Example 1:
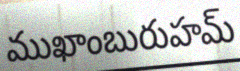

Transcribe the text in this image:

ముఖాంబురుహమ్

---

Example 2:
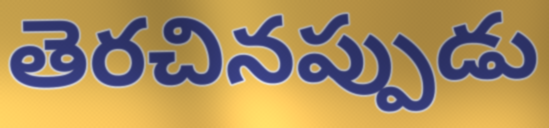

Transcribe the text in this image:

తెరచినప్పుడు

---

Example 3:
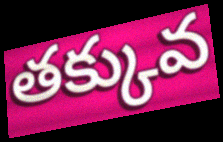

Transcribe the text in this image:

తక్కువ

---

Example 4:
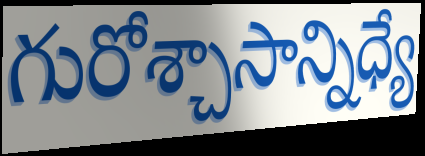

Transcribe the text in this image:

గురోశ్చాసాన్నిధ్యే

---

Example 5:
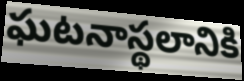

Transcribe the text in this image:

ఘటనాస్థలానికి